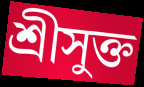
শ্রীসুক্ত